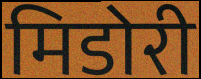
मिडोरी